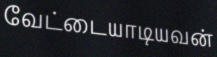
வேட்டையாடியவன்